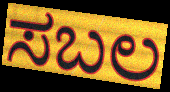
ಸಬಲ